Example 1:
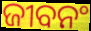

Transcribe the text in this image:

ଜୀବନଂ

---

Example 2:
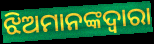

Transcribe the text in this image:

ଝିଅମାନଙ୍କଦ୍ଵାରା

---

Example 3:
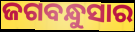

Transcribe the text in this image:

ଜଗବନ୍ଧୁସାର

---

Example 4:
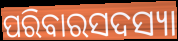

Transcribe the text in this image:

ପରିବାରସଦସ୍ୟା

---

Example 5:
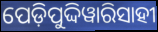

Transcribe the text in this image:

ପେଡ଼ିପୁଦ୍ଦିୱାରିସାହୀ